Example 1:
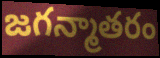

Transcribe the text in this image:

జగన్మాతరం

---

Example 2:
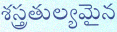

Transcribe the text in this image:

శస్త్రతుల్యమైన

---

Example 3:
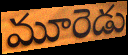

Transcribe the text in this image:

మూరెడు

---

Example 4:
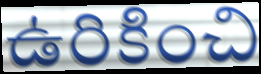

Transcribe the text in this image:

ఉరికించి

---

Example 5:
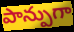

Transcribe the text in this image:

పాన్పుగా